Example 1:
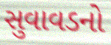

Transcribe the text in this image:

સુવાવડનો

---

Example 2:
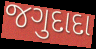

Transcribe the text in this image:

જગુદાદા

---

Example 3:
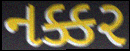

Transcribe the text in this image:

નક્કર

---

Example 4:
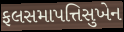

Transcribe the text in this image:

ફલસમાપત્તિસુખેન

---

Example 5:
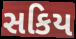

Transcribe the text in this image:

સકિય